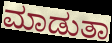
ಮಾಡುತಾ